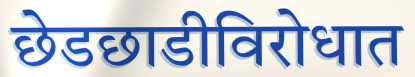
छेडछाडीविरोधात